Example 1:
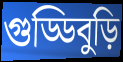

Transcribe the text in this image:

গুড্ডিবুড়ি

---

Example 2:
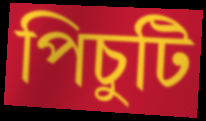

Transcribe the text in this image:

পিচুটি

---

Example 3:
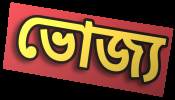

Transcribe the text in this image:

ভোজ্য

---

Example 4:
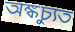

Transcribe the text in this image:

অঙ্কচ্যুত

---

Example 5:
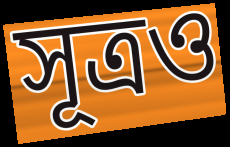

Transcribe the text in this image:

সূত্রও